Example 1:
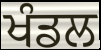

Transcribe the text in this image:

ਖੰਡਲ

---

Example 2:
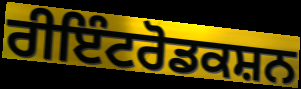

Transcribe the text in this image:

ਰੀਇੰਟਰੋਡਕਸ਼ਨ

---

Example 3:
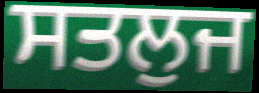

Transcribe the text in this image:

ਸਤਲੁਜ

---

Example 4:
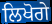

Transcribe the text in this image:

ਲਿਖੋਗੇ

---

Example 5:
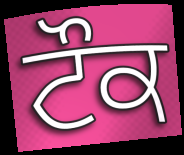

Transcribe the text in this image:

ਟੌਕ